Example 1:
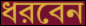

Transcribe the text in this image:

ধরবেন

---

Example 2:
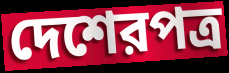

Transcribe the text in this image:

দেশেরপত্র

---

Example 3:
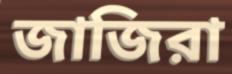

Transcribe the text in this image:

জাজিরা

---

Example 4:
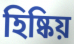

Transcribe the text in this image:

হিষ্কিয়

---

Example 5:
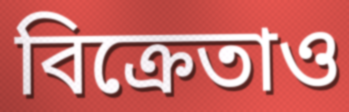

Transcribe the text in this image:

বিক্রেতাও